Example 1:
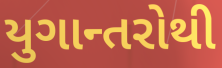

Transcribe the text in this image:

યુગાન્તરોથી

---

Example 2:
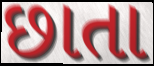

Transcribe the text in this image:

છાતા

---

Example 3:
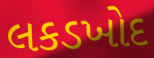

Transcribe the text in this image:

લકડખોદ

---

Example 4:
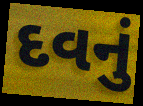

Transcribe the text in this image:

દવનું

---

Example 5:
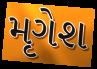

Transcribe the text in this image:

મૃગેશ